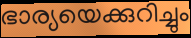
ഭാര്യയെക്കുറിച്ചും